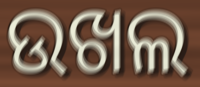
ଉଖଲ